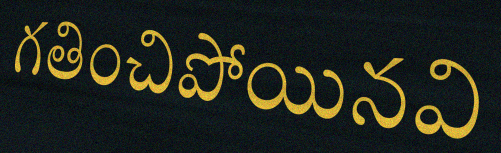
గతించిపోయినవి